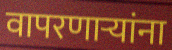
वापरणाऱ्यांना